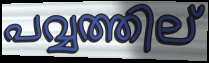
പവ്വത്തില്